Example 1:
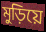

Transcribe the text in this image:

মুড়িয়ে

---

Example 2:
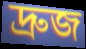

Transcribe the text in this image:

দ্রুজ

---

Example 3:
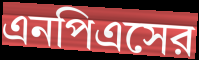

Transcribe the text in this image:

এনপিএসের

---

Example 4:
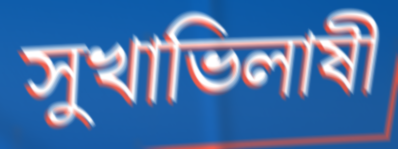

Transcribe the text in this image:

সুখাভিলাষী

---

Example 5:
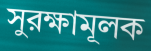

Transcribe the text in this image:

সুরক্ষামূলক